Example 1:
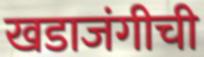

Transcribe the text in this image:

खडाजंगीची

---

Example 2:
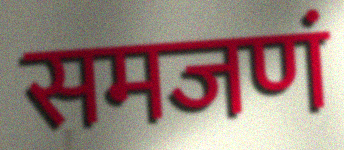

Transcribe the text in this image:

समजणं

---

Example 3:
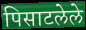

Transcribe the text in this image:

पिसाटलेले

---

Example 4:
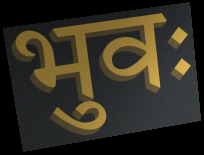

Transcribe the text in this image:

भुवः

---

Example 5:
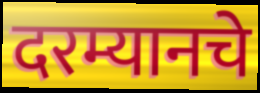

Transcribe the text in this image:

दरम्यानचे